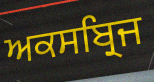
ਅਕਸਬ੍ਰਿਜ